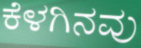
ಕೆಳಗಿನವು